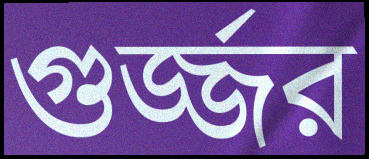
গুর্জ্জর